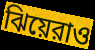
ঝিয়েরাও